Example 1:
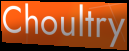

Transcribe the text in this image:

Choultry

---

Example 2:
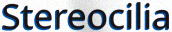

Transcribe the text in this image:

Stereocilia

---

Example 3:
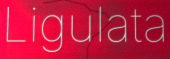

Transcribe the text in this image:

Ligulata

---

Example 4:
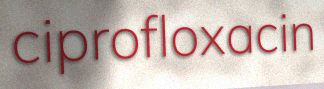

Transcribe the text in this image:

ciprofloxacin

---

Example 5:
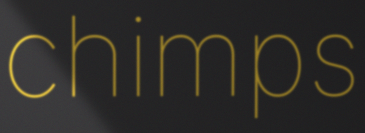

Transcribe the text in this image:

chimps